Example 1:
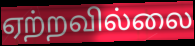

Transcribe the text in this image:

ஏற்றவில்லை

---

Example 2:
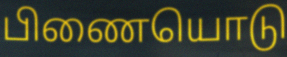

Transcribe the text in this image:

பிணையொடு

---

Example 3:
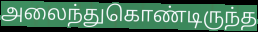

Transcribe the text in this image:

அலைந்துகொண்டிருந்த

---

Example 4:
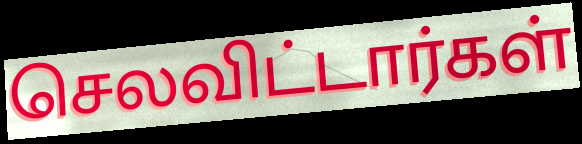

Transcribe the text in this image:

செலவிட்டார்கள்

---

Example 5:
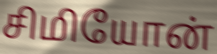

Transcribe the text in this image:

சிமியோன்